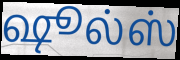
ஷூல்ஸ்